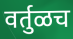
वर्तुळच